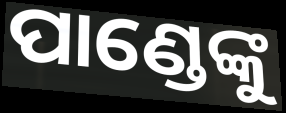
ପାଣ୍ଡେଙ୍କୁ